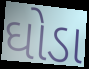
ઘોડા